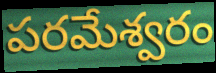
పరమేశ్వరం